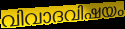
വിവാദവിഷയം